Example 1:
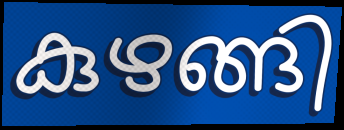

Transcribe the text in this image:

കുഴങ്ങി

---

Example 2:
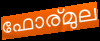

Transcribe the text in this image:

ഫോര്മുല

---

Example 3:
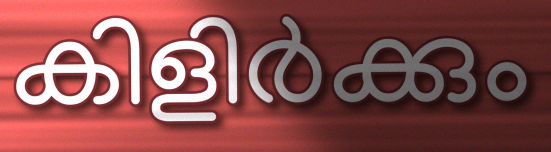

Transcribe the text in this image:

കിളിർക്കും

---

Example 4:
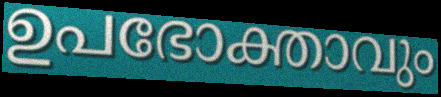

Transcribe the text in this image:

ഉപഭോക്താവും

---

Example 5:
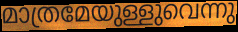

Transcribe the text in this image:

മാത്രമേയുള്ളുവെന്നു